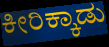
ಕೀರಿಕ್ಕಾಡು